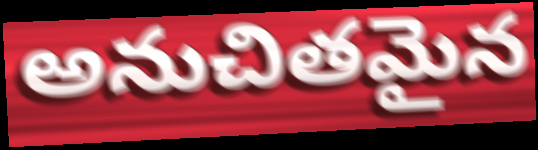
అనుచితమైన